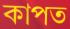
কাপত